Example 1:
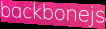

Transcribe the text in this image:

backbonejs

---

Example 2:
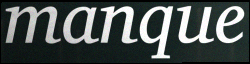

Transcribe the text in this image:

manque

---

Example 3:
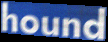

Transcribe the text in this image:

hound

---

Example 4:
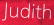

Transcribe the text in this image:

Judith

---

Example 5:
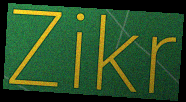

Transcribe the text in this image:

Zikr